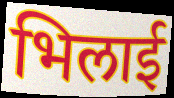
भिलाई